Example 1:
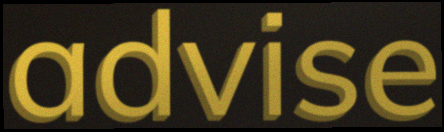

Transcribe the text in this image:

advise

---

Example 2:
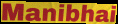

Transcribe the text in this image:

Manibhai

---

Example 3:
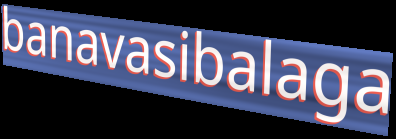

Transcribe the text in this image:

banavasibalaga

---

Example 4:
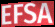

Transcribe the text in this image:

EFSA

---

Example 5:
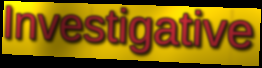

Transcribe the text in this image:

Investigative